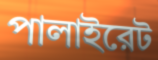
পালাইরেট